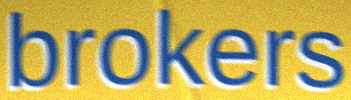
brokers